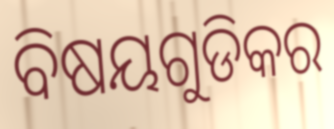
ବିଷୟଗୁଡିକର